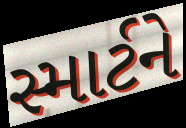
સ્માર્ટને